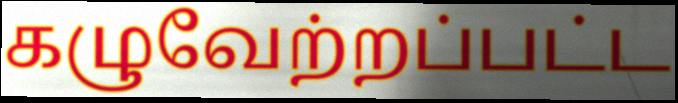
கழுவேற்றப்பட்ட